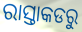
ରାସ୍ତାକଡରୁ